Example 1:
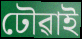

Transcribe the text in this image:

ঢৌৱাই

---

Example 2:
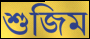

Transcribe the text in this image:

শুজিম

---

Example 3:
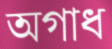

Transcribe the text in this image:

অগাধ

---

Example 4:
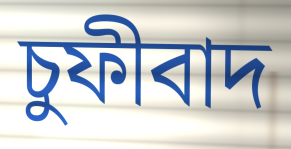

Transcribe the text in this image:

চুফীবাদ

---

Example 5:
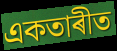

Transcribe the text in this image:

একতাৰীত